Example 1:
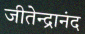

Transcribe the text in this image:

जीतेन्द्रानंद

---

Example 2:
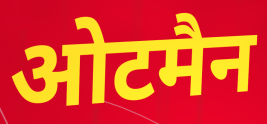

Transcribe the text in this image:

ओटमैन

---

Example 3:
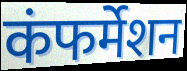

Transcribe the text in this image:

कंफर्मेशन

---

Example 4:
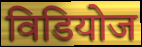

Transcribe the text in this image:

विडियोज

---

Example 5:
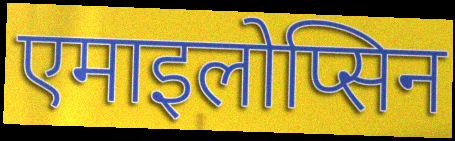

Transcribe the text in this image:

एमाइलोप्सिन